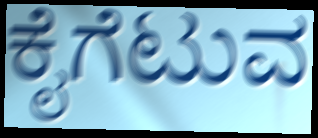
ಕೈಗೆಟುವ